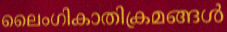
ലൈംഗികാതിക്രമങ്ങൾ